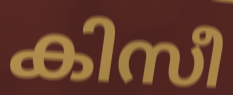
കിസീ